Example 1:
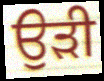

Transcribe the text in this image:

ਉਡ਼ੀ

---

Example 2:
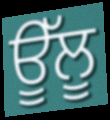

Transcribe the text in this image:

ਊੱਲੂ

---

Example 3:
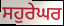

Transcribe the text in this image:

ਸਹੁਰੇਘਰ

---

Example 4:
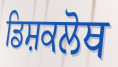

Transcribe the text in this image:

ਡਿਸ਼ਕਲੋਥ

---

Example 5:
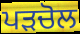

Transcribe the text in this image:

ਪੜਚੋਲ